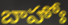
బాహోః